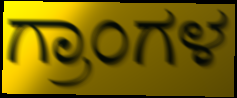
ಗ್ರಾಂಗಳ